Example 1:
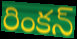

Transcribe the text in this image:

రింకన్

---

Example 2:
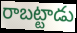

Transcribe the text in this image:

రాబట్టాడు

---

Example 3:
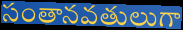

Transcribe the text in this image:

సంతానవతులుగా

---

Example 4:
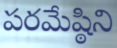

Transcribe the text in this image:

పరమేష్ఠిని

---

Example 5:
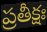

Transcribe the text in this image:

ప్రతీక్షః